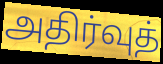
அதிர்வுத்